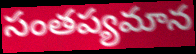
సంతప్యమాన